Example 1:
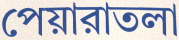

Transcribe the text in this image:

পেয়ারাতলা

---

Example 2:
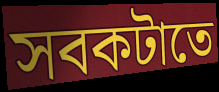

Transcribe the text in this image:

সবকটাতে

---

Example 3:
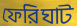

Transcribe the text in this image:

ফেরিঘাট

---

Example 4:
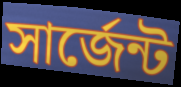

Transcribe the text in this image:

সার্জেন্ট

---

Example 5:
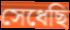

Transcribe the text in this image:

সেধেছি